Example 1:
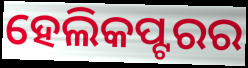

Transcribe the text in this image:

ହେଲିକପ୍ଟରର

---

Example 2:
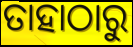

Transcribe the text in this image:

ତାହାଠାରୁ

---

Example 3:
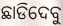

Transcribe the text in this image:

ଛାଡିଦେବୁ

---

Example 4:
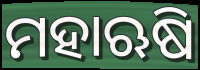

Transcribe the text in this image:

ମହାଋଷି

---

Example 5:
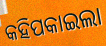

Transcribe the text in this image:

କହିପକାଇଲା